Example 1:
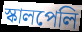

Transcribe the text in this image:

স্কালপেলি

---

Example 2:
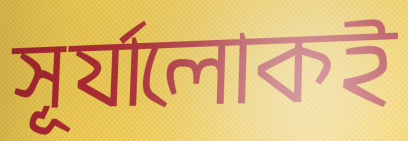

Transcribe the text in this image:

সূর্যালোকই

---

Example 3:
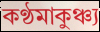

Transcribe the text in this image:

কণ্ঠমাকুঞ্চ্য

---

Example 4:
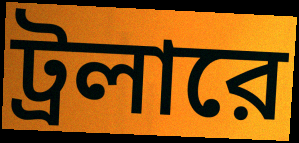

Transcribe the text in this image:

ট্রলারে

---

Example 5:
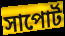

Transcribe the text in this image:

সাপোর্ট